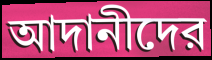
আদানীদের